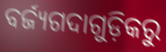
ବର୍ଜ୍ୟଗଦାଗୁଡ଼ିକରୁ